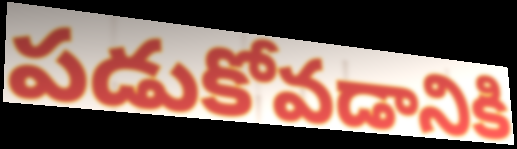
పడుకోవడానికి